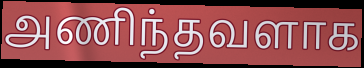
அணிந்தவளாக